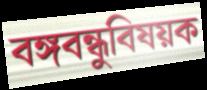
বঙ্গবন্ধুবিষয়ক